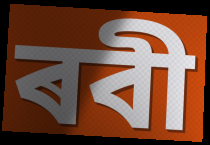
ৰবী